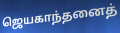
ஜெயகாந்தனைத்